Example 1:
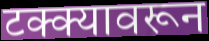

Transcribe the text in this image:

टक्क्यावरून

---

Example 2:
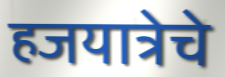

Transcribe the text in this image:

हजयात्रेचे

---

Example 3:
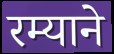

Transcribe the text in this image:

रम्याने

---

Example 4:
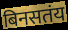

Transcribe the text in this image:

बिनसतंय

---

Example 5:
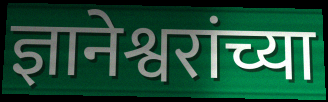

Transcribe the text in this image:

ज्ञानेश्वरांच्या